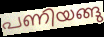
പണിയങ്ങു